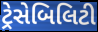
ટ્રેસેબિલિટી